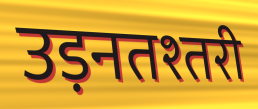
उड़नतश्तरी